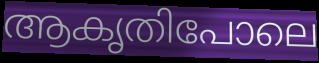
ആകൃതിപോലെ